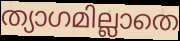
ത്യാഗമില്ലാതെ